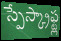
స్పేస్క్రాఫ్ట్ల